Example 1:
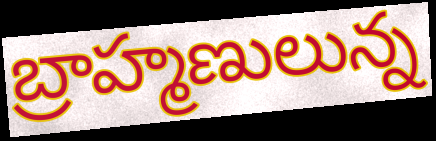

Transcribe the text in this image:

బ్రాహ్మణులున్న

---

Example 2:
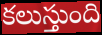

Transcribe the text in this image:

కలుస్తుంది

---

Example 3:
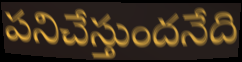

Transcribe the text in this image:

పనిచేస్తుందనేది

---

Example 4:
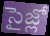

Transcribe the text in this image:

సైజ్లో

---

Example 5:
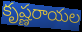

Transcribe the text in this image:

కృష్ణరాయల